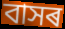
বাসৰ